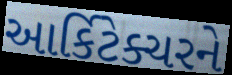
આર્કિટેક્ચરને